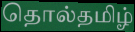
தொல்தமிழ்